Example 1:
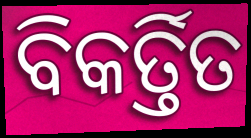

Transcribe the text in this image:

ବିକର୍ତ୍ତିତ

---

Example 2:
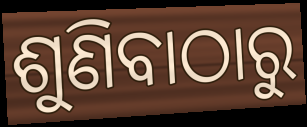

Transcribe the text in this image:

ଶୁଣିବାଠାରୁ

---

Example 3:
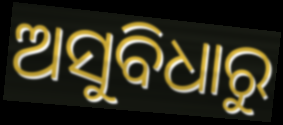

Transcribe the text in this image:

ଅସୁବିଧାରୁ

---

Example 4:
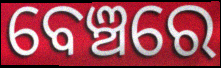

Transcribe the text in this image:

ବେଞ୍ଚରେ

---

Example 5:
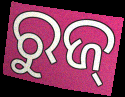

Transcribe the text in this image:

ରୁଜ୍